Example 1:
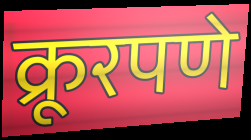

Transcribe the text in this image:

क्रूरपणे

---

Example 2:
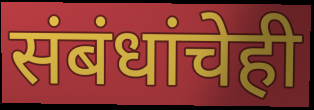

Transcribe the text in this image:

संबंधांचेही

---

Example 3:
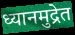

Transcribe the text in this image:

ध्यानमुद्रेत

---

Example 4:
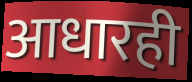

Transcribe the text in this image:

आधारही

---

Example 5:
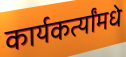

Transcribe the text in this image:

कार्यकर्त्यांमधे